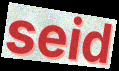
seid